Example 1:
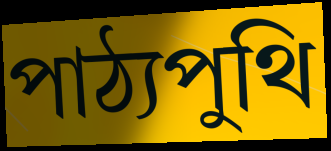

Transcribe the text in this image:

পাঠ্যপুথি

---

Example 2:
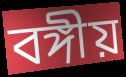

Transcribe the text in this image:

বঙ্গীয়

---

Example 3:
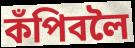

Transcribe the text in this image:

কঁপিবলৈ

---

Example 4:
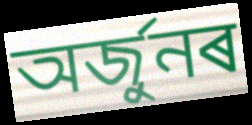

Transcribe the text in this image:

অৰ্জুনৰ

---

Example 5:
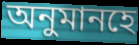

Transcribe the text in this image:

অনুমানহে